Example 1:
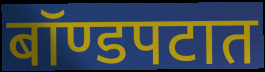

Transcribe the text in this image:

बॉण्डपटात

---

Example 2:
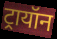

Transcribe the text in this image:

ट्रायॉन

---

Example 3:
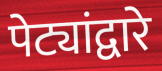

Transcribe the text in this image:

पेट्यांद्वारे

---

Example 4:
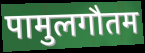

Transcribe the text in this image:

पामुलगौतम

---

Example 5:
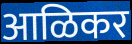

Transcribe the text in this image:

आळिकर